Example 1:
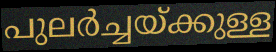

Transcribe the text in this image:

പുലർച്ചയ്ക്കുള്ള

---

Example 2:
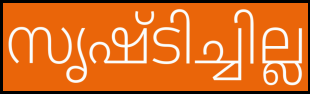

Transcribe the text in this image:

സൃഷ്ടിച്ചില്ല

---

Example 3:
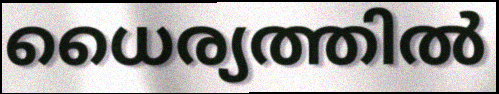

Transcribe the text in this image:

ധൈര്യത്തിൽ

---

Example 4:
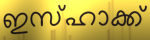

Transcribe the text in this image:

ഇസ്ഹാക്ക്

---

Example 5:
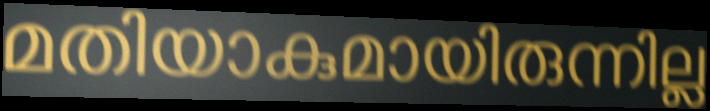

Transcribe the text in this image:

മതിയാകുമായിരുന്നില്ല